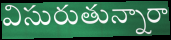
విసురుతున్నారా